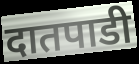
दातपाडी